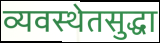
व्यवस्थेतसुद्धा